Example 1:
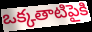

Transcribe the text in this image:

ఒక్కతాటిపైకి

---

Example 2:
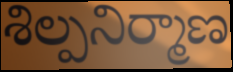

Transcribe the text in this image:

శిల్పనిర్మాణ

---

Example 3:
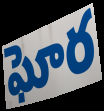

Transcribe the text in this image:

ఘోర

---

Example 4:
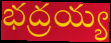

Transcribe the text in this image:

భద్రయ్య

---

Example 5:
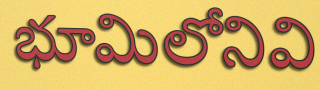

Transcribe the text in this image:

భూమిలోనివి